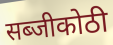
सब्जीकोठी